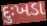
દુઃખડા